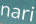
nari